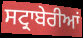
ਸਟ੍ਰਾਬੇਰੀਆਂ